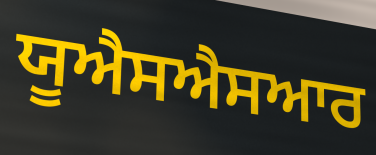
ਯੂਐਸਐਸਆਰ